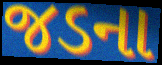
જડના